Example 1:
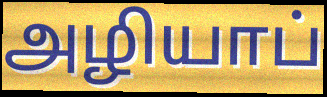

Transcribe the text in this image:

அழியாப்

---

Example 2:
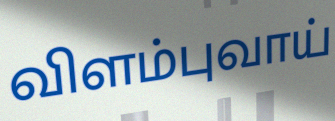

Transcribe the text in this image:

விளம்புவாய்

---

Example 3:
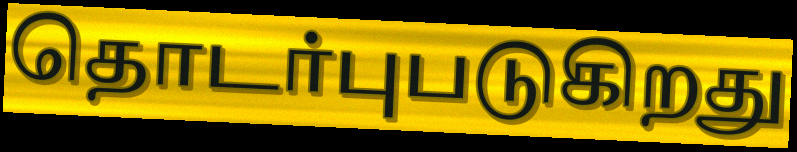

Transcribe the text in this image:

தொடர்புபடுகிறது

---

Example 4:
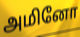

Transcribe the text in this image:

அமினோ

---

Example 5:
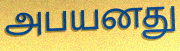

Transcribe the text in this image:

அபயனது